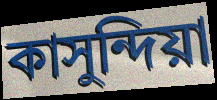
কাসুন্দিয়া